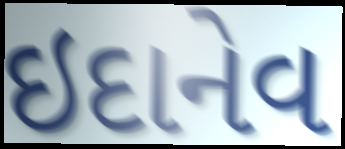
ઇદાનેવ